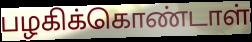
பழகிக்கொண்டாள்